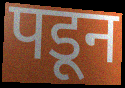
पडून